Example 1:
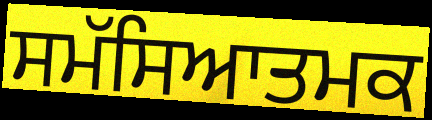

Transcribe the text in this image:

ਸਮੱਸਿਆਤਮਕ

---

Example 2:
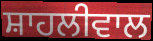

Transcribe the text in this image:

ਸ਼ਾਹਲੀਵਾਲ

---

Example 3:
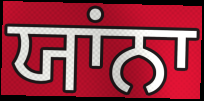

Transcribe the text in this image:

ਯਾਂਨਾ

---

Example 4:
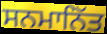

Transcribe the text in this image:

ਸਨਮਾਨਿੱਤ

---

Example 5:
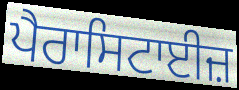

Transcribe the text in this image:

ਪੈਰਾਸਿਟਾਈਜ਼